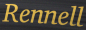
Rennell